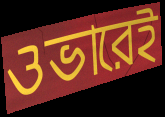
ওভারেই